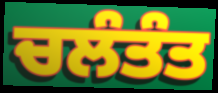
ਚਲੰਤੰਤ